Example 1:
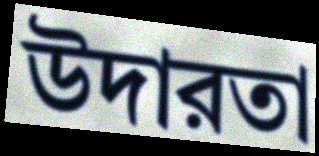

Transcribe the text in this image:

উদারতা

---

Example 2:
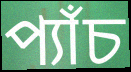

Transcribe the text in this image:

প্যাঁচ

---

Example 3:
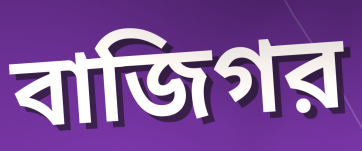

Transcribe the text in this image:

বাজিগর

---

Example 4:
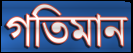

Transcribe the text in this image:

গতিমান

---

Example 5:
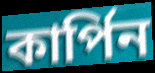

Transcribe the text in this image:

কার্পিন